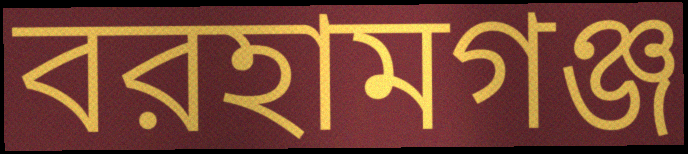
বরহামগঞ্জ